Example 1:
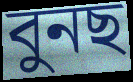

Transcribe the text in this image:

বুনছ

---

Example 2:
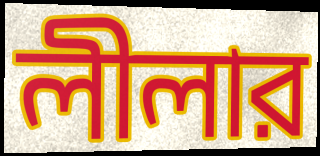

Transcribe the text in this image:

লীলার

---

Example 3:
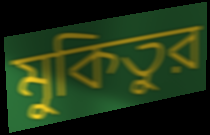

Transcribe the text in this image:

মুকিতুর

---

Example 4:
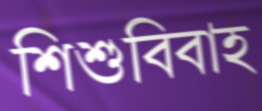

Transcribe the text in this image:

শিশুবিবাহ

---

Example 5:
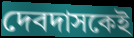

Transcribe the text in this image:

দেবদাসকেই